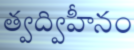
త్వద్విహీనం